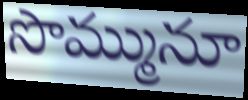
సొమ్మునూ